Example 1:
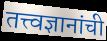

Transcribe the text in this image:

तत्त्वज्ञानांची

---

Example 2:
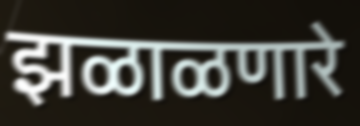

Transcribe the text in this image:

झळाळणारे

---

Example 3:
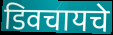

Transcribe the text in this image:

डिवचायचे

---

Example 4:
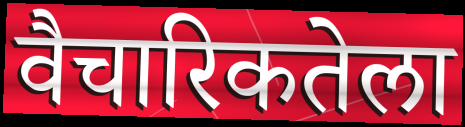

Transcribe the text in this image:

वैचारिकतेला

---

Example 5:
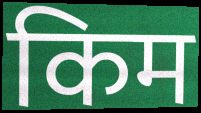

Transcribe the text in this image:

किम